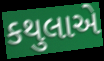
કથુલાએ